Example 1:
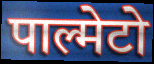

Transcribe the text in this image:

पाल्मेटो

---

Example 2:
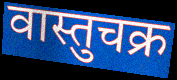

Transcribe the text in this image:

वास्तुचक्र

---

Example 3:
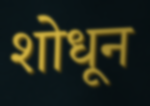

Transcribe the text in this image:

शोधून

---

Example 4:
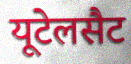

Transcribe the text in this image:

यूटेलसैट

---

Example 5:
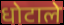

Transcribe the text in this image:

धोटाले